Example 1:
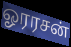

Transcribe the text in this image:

ஓரரசன்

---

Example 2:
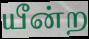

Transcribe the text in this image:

யீன்ற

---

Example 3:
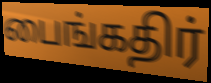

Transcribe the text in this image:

பைங்கதிர்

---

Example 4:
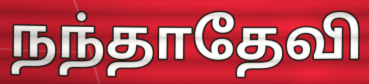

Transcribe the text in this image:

நந்தாதேவி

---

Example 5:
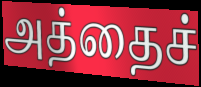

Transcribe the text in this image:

அத்தைச்